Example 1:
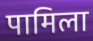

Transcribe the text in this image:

पामिला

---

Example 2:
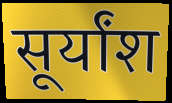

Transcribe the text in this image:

सूर्यांश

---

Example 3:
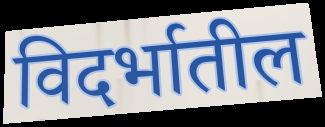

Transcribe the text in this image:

विदर्भातील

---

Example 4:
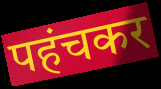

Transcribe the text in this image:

पहंचकर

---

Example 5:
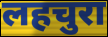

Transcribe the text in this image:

लहचुरा